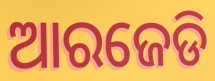
ଆରଜେଡି